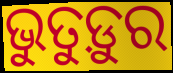
ଭୁତୁଡ଼ୁର